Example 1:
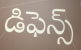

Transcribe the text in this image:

డిఫెన్స్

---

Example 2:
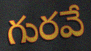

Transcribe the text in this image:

గురవే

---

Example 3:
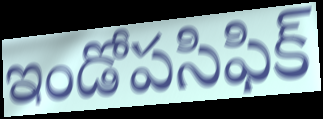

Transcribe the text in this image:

ఇండోపసిఫిక్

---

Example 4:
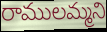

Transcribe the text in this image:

రాములమ్మని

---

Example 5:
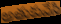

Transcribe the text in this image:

అతుకువేసి